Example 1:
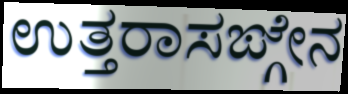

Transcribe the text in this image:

ಉತ್ತರಾಸಙ್ಗೇನ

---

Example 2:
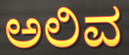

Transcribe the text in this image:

ಅಲಿವ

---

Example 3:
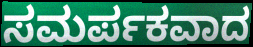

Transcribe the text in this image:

ಸಮರ್ಪಕವಾದ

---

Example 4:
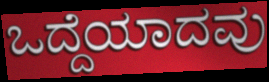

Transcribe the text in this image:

ಒದ್ದೆಯಾದವು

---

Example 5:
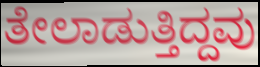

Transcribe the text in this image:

ತೇಲಾಡುತ್ತಿದ್ದವು